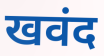
खवंद